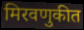
मिरवणुकीत